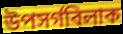
উপসৰ্গবিলাক